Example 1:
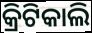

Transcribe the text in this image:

କ୍ରିଟିକାଲି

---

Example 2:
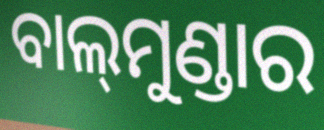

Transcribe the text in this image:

ବାଲ୍‍ମୁଣ୍ଡାର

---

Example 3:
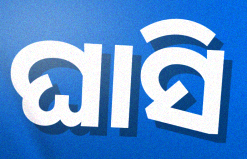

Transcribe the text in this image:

ଘାସି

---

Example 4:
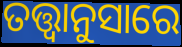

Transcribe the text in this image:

ତତ୍ତ୍ୱାନୁସାରେ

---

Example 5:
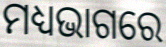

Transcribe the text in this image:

ମଧ୍ୟଭାଗରେ